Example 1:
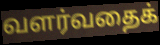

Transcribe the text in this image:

வளர்வதைக்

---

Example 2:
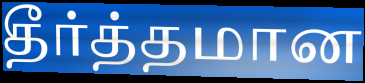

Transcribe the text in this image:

தீர்த்தமான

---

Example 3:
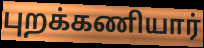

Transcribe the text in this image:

புறக்கணியார்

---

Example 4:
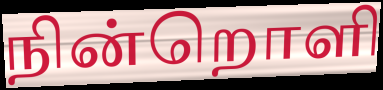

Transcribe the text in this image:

நின்றொளி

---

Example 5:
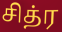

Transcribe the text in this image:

சித்ர